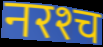
नरश्च